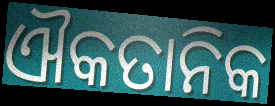
ଐକତାନିକ